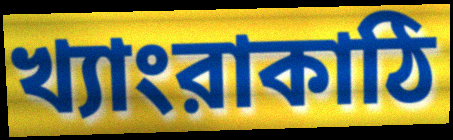
খ্যাংরাকাঠি